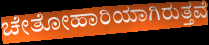
ಚೇತೋಹಾರಿಯಾಗಿರುತ್ತವೆ